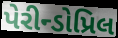
પેરીન્ડોપ્રિલ